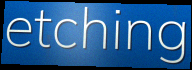
etching